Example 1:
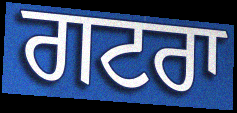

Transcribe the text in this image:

ਗਟਰਾ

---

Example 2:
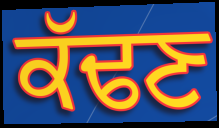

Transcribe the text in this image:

ਕੱਢਣ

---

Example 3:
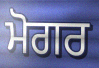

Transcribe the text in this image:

ਮੋਗਰ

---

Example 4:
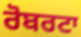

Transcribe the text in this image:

ਰੋਬਰਟਾ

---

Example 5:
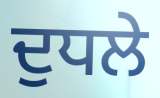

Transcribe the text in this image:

ਦੁਧਲੇ